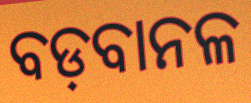
ବଡ଼ବାନଳ